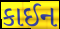
કાઈન